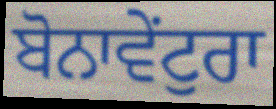
ਬੋਨਾਵੇਂਟੁਰਾ